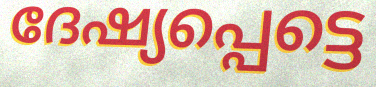
ദേഷ്യപ്പെട്ടെ